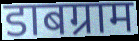
डाबग्राम